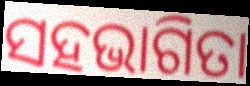
ସହଭାଗିତା